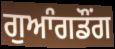
ਗੁਆੰਗਡੌਂਗ